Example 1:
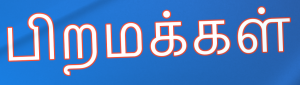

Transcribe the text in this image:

பிறமக்கள்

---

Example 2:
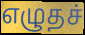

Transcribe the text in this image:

எழுதச்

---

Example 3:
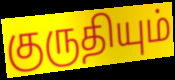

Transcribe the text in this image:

குருதியும்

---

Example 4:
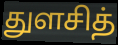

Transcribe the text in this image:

துளசித்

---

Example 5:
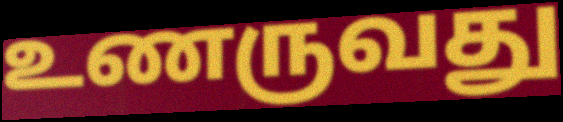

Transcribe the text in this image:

உணருவது